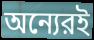
অন্যেরই